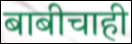
बाबीचाही